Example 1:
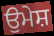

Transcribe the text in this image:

ਉਮੇਸ਼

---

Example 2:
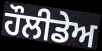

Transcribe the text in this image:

ਹੌਲੀਡੇਅ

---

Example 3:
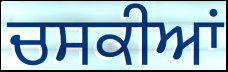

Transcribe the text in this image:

ਚਸਕੀਆਂ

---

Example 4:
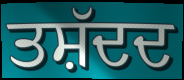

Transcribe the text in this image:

ਤਸ਼ੱਦਦ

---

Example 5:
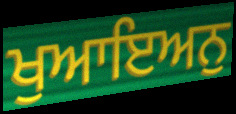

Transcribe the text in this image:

ਖੁਆਇਅਨੁ